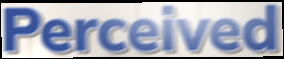
Perceived